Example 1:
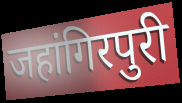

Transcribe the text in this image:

जहांगिरपुरी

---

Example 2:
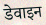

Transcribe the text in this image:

डेवाइन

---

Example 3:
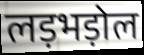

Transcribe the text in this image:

लड़भड़ोल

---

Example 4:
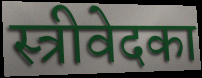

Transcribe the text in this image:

स्त्रीवेदका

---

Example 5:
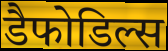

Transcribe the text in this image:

डैफोडिल्स